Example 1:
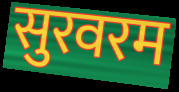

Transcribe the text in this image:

सुरवरम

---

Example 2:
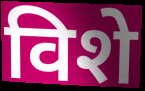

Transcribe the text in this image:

विशे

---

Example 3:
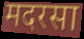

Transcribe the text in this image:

मदरसा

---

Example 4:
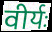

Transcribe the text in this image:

वीर्यः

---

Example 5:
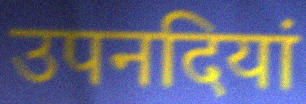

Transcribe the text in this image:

उपनदियां